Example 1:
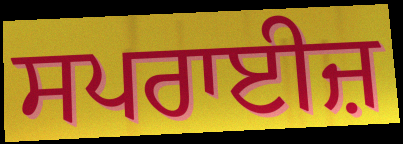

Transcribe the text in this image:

ਸਪਰਾਈਜ਼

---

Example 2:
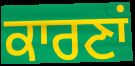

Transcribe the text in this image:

ਕਾਰਣਾਂ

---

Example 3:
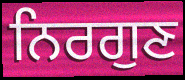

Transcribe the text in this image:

ਨਿਰਗੁਣ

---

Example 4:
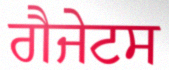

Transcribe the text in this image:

ਗੈਜੇਟਸ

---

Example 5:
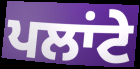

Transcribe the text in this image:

ਪਲਾਂਟੇ